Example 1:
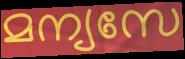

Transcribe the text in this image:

മന്യസേ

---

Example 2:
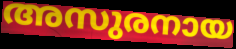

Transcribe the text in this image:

അസുരനായ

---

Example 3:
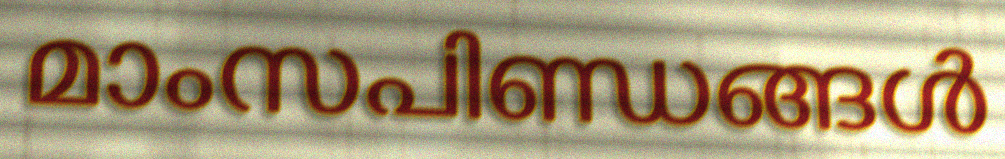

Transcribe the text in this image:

മാംസപിണ്ഡങ്ങൾ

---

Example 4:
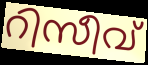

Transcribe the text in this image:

റിസീവ്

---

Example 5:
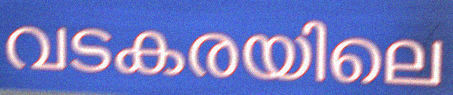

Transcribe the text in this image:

വടകരയിലെ